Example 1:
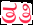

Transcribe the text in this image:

ತತಿ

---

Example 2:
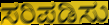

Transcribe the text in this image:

ಸರಿಪಡಿಸು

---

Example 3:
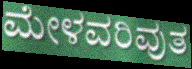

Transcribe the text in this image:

ಮೇಳವರಿವುತ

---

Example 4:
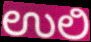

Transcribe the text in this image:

ಉಲಿ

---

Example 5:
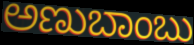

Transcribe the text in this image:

ಅಣುಬಾಂಬು